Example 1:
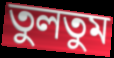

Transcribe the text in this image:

তুলতুম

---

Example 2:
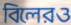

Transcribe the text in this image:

বিলেরও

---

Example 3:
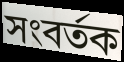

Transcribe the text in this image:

সংবর্তক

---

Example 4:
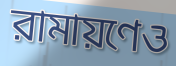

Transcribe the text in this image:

রামায়ণেও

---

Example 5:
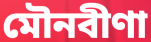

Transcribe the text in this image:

মৌনবীণা